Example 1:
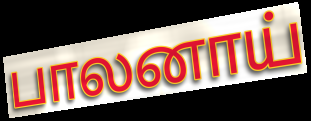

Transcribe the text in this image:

பாலனாய்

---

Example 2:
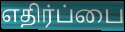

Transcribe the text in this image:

எதிர்ப்பை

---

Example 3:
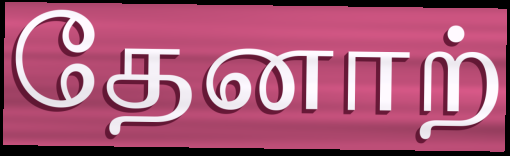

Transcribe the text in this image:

தேனாற்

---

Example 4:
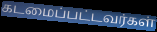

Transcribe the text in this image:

கடமைப்பட்டவர்கள்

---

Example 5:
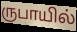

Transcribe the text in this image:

ருபாயில்